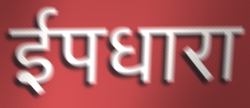
ईपधारा